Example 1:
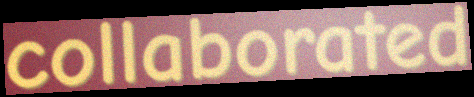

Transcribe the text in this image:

collaborated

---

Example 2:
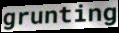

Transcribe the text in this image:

grunting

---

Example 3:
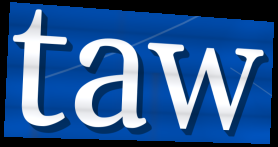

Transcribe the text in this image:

taw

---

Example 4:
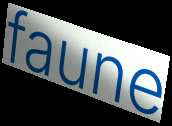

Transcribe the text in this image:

faune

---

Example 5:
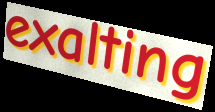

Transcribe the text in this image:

exalting